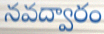
నవద్వారం